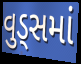
વુડ્સમાં